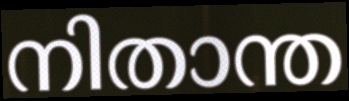
നിതാന്ത